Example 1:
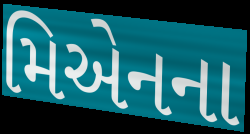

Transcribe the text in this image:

મિએનના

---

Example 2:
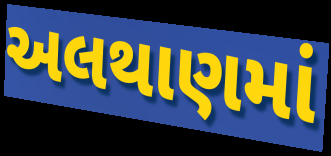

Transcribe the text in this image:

અલથાણમાં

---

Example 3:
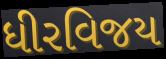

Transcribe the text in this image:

ધીરવિજય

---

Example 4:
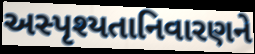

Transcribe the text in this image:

અસ્પૃશ્યતાનિવારણને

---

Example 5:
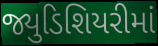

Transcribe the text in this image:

જ્યુડિશિયરીમાં